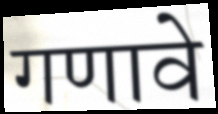
गणावे